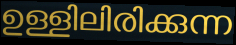
ഉള്ളിലിരിക്കുന്ന